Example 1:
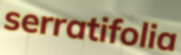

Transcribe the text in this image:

serratifolia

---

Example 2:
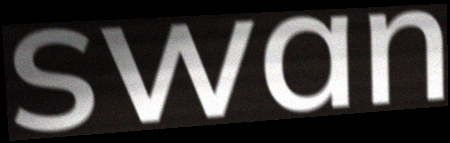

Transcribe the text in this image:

swan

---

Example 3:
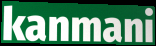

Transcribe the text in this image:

kanmani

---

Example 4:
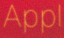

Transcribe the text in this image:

Appl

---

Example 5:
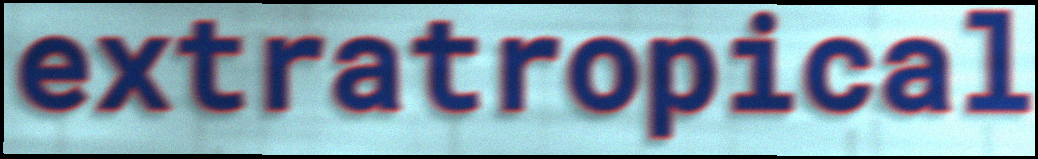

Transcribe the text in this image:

extratropical